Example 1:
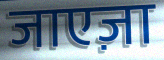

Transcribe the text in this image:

जाएज़ा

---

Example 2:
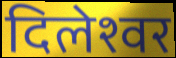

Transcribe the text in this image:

दिलेश्वर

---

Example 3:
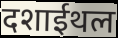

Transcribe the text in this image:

दशाईथल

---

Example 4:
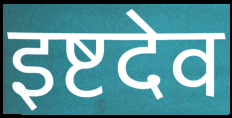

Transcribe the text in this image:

इष्टदेव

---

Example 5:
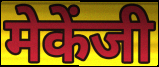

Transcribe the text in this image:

मेकेंजी